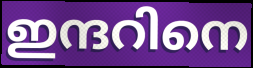
ഇന്ദറിനെ